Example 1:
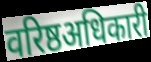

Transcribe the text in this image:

वरिष्ठअधिकारी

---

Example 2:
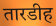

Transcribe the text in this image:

तारडीह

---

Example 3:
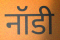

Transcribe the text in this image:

नॉडी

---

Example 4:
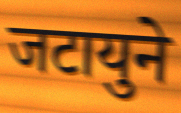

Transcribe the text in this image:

जटायुने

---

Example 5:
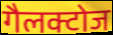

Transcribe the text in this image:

गैलक्टोज